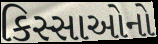
કિસ્સાઓનો